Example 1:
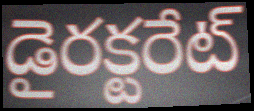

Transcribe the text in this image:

డైరక్టరేట్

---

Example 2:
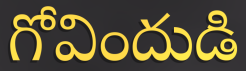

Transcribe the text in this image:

గోవిందుడి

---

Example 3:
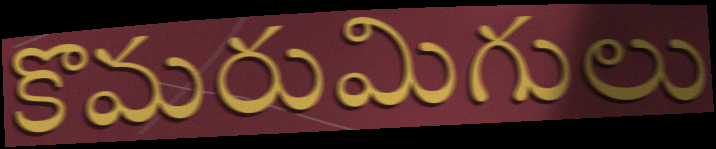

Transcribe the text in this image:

కొమరుమిగులు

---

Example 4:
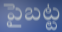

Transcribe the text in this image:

పైబట్ట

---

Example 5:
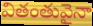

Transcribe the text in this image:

వితంతువైనా